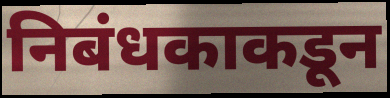
निबंधकाकडून